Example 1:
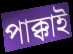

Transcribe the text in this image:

পাক্কাই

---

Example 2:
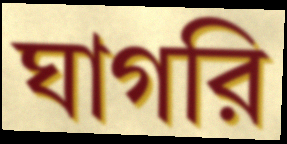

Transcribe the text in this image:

ঘাগরি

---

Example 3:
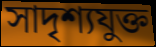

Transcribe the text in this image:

সাদৃশ্যযুক্ত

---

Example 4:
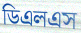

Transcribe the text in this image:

ডিএলএস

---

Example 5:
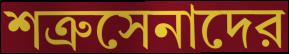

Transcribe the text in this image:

শত্রুসেনাদের